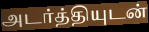
அடர்த்தியுடன்